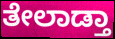
ತೇಲಾಡ್ತಾ